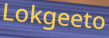
Lokgeeto